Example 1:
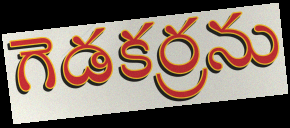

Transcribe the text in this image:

గెడకర్రను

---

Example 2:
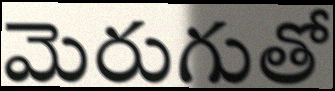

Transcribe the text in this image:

మెరుగుతో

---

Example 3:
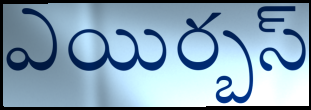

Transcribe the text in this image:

ఎయిర్బస్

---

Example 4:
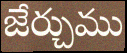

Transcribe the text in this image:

జేర్చుము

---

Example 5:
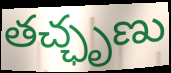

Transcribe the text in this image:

తచ్ఛృణు